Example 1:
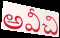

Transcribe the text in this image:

అవీచి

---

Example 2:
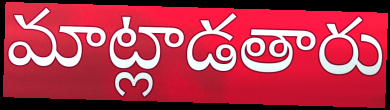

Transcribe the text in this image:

మాట్లాడతారు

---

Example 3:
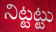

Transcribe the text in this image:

నిట్టట్టు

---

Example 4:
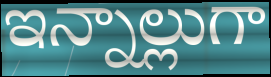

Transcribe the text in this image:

ఇన్నాల్లుగా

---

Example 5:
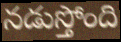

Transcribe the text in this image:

నడుస్తోంది